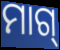
ମାଗ୍